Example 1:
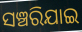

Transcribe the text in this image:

ସଞ୍ଚରିଯାଇ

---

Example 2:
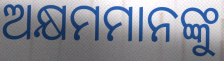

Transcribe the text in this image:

ଅକ୍ଷମମାନଙ୍କୁ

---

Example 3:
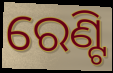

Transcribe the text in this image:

ରେଣ୍ଟି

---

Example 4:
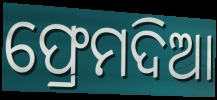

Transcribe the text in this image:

ଫ୍ରେମଦିଆ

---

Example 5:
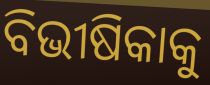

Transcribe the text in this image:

ବିଭୀଷିକାକୁ